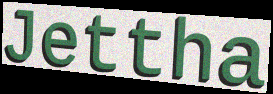
Jettha